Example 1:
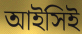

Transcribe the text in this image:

আইসিই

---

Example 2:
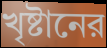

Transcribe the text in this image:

খৃষ্টানের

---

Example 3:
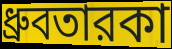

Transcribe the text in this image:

ধ্রুবতারকা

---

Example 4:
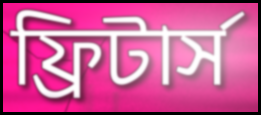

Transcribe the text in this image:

ফ্রিটার্স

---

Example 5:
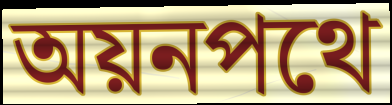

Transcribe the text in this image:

অয়নপথে